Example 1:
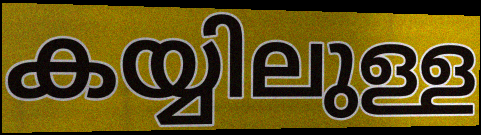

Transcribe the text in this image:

കയ്യിലുള്ള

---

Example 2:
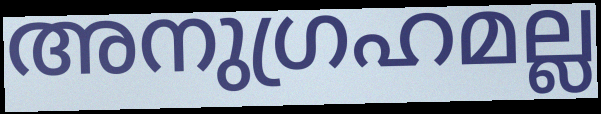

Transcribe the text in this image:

അനുഗ്രഹമല്ല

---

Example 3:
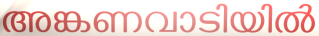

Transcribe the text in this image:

അങ്കണവാടിയിൽ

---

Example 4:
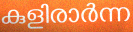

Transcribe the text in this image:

കുളിരാർന്ന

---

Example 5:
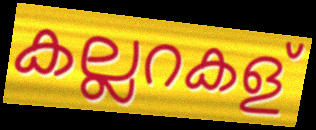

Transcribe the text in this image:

കല്ലറകള്